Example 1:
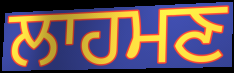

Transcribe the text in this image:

ਲਾਹਮਣ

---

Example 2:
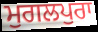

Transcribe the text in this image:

ਮੁਗਲਪੁਰਾ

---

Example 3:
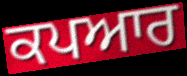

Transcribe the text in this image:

ਕਪਆਰ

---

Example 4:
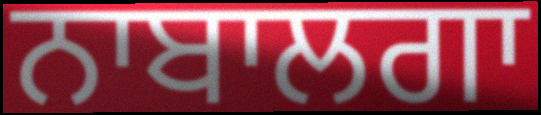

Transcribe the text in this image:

ਨਾਬਾਲਗਾ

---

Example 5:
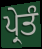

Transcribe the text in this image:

ਪ੍ਰੇਤੰ